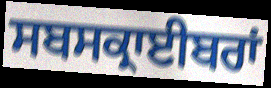
ਸਬਸਕ੍ਰਾਈਬਰਾਂ